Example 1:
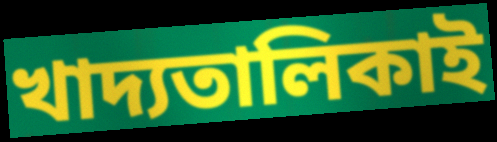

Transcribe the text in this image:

খাদ্যতালিকাই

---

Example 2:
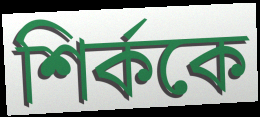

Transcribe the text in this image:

শির্ককে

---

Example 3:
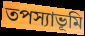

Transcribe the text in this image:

তপস্যাভূমি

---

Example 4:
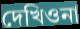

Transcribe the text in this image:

দেখিওনা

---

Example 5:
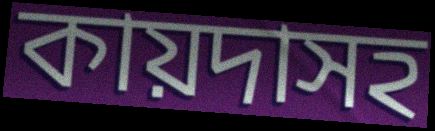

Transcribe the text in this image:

কায়দাসহ